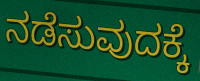
ನಡೆಸುವುದಕ್ಕೆ